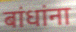
बांधांना